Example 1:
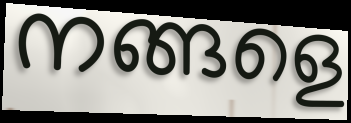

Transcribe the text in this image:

നങ്ങളെ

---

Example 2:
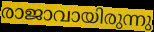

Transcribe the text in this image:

രാജാവായിരുന്നു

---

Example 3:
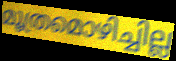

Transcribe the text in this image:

മൂത്രമൊഴിച്ചില്ല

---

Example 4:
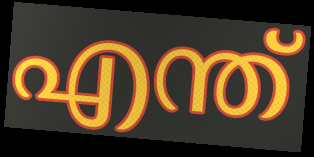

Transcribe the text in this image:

എന്ത്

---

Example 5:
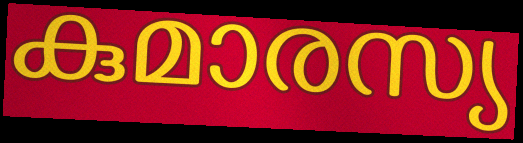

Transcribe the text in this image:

കുമാരസ്യ